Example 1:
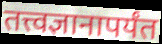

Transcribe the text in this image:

तत्त्वज्ञानापर्यंत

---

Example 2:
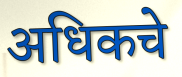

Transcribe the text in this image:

अधिकचे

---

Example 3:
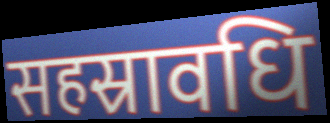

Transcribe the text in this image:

सहस्रावधि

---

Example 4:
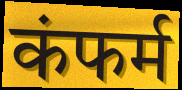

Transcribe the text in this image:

कंफर्म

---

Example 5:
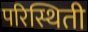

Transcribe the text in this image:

परिस्थिती